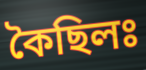
কৈছিলঃ